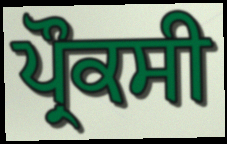
ਪ੍ਰੌਕਸੀ